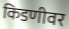
किडणीवर